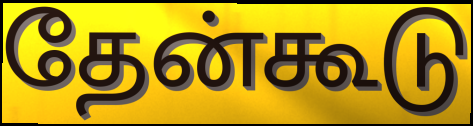
தேன்கூடு